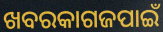
ଖବରକାଗଜପାଇଁ